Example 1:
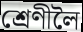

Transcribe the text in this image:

শ্ৰেণীলৈ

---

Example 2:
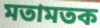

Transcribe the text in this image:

মতামতক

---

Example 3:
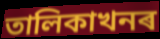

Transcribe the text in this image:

তালিকাখনৰ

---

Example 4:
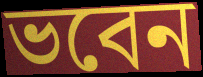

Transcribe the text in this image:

ভবেন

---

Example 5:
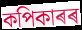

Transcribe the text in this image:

কপিকাৰৰ